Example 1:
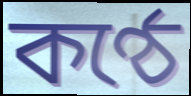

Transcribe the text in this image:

কণ্ঠে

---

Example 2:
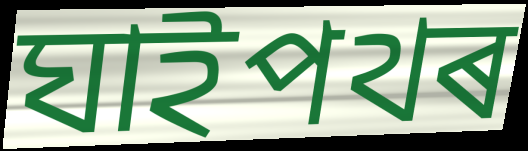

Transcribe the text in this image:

ঘাইপথৰ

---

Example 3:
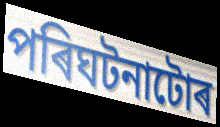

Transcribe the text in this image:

পৰিঘটনাটোৰ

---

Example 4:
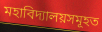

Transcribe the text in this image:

মহাবিদ্যালয়সমূহত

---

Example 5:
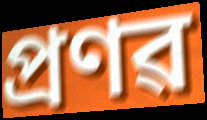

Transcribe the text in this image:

প্ৰণৱ